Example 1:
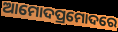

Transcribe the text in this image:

ଆମୋଦପ୍ରମୋଦରେ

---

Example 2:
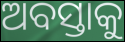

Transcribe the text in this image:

ଅବସ୍ତାକୁ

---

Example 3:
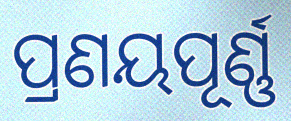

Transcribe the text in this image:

ପ୍ରଣୟପୂର୍ଣ୍ଣ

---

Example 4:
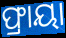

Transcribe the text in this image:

ଫ୍ରାୟା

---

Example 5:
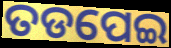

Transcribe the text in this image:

ତଡପେଇ